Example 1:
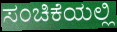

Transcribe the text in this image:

ಸಂಚಿಕೆಯಲ್ಲಿ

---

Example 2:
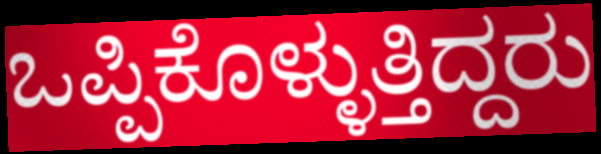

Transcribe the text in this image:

ಒಪ್ಪಿಕೊಳ್ಳುತ್ತಿದ್ದರು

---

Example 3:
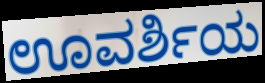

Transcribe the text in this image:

ಊವರ್ಶಿಯ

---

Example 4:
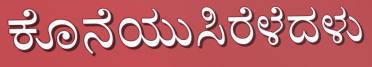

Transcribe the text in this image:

ಕೊನೆಯುಸಿರೆಳೆದಳು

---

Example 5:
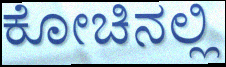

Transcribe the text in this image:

ಕೋಚಿನಲ್ಲಿ